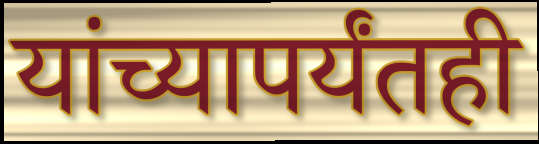
यांच्यापर्यंतही